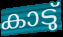
കാടു്